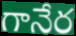
గానేర